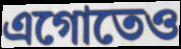
এগোতেও